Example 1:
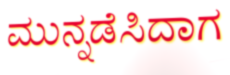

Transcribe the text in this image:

ಮುನ್ನಡೆಸಿದಾಗ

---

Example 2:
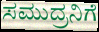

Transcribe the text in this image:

ಸಮುದ್ರನಿಗೆ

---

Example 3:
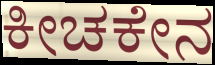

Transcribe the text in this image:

ಕೀಚಕೇನ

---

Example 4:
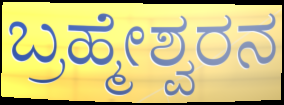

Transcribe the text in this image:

ಬ್ರಹ್ಮೇಶ್ವರನ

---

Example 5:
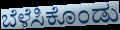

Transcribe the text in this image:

ಬೆಳೆಸಿಕೊಂಡು